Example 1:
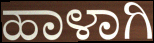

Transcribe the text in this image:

ಹಾಳಾಗಿ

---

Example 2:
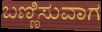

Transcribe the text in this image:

ಬಣ್ಣಿಸುವಾಗ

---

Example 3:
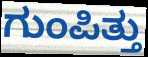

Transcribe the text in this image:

ಗುಂಪಿತ್ತು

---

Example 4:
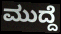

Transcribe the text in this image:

ಮುದ್ದೆ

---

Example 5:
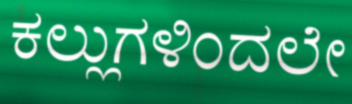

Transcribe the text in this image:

ಕಲ್ಲುಗಳಿಂದಲೇ